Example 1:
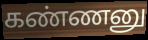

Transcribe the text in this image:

கண்ணனு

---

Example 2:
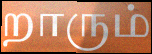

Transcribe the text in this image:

றாரும்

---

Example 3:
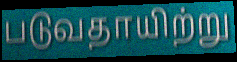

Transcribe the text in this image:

படுவதாயிற்று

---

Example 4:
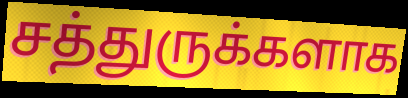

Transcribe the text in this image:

சத்துருக்களாக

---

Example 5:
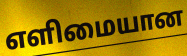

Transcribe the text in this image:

எளிமையான